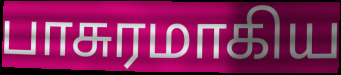
பாசுரமாகிய